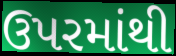
ઉપરમાંથી